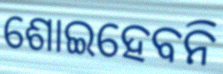
ଶୋଇହେବନି